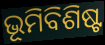
ଭୂମିବିଶିଷ୍ଟ